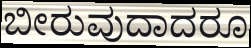
ಬೀರುವುದಾದರೂ